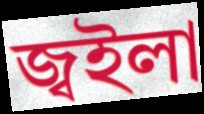
জ্বইলা